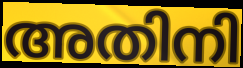
അതിനി